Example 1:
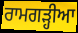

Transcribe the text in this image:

ਰਾਮਗਡ਼੍ਹੀਆ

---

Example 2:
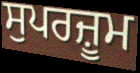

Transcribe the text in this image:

ਸੁਪਰਜ਼ੂਮ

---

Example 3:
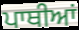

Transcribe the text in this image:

ਪਾਥੀਆਂ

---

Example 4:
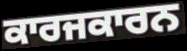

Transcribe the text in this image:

ਕਾਰਜਕਾਰਨ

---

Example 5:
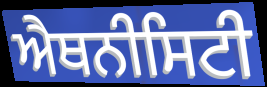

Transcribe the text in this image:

ਐਥਨੀਸਿਟੀ